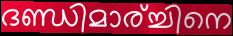
ദണ്ഡിമാര്ച്ചിനെ